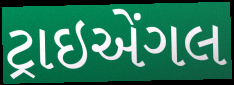
ટ્રાઇએંગલ